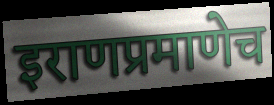
इराणप्रमाणेच